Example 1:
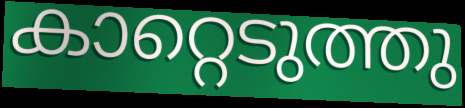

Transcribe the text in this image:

കാറ്റെടുത്തു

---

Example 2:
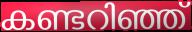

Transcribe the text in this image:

കണ്ടറിഞ്ഞ്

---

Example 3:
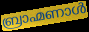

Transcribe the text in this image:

ബ്രാഹ്മണാൾ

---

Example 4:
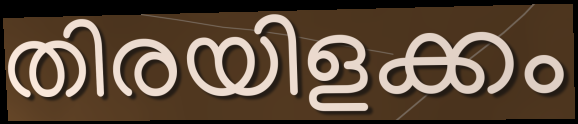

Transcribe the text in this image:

തിരയിളക്കം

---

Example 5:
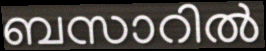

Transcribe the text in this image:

ബസാറിൽ